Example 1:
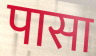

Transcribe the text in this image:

पासा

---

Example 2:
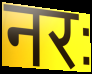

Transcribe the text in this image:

नरः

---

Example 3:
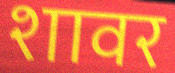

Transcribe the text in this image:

शावर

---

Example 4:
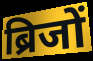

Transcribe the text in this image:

ब्रिजों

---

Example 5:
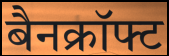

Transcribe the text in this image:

बैनक्रॉफ्ट